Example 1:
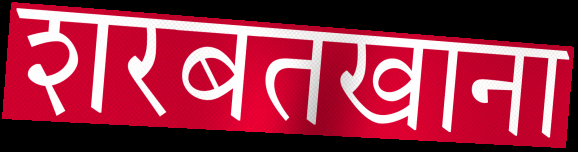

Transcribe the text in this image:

शरबतखाना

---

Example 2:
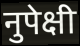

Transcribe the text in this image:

नुपेक्षी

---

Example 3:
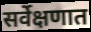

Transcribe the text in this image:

सर्वेक्षणात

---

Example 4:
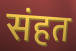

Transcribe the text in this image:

संहत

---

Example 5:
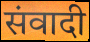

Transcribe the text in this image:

संवादी